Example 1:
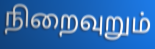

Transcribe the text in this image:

நிறைவுறும்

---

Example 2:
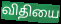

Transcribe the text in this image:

விதியை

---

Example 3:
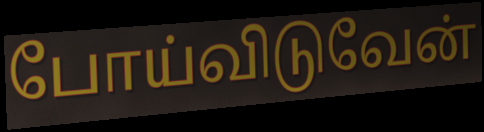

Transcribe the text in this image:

போய்விடுவேன்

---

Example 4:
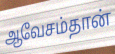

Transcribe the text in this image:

ஆவேசம்தான்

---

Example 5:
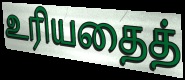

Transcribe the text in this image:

உரியதைத்